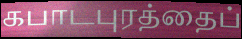
கபாடபுரத்தைப்